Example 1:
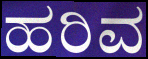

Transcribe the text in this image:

ಹರಿವ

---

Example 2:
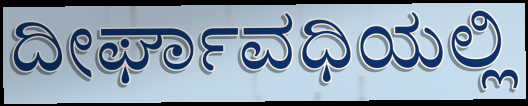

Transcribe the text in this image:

ದೀರ್ಘಾವಧಿಯಲ್ಲಿ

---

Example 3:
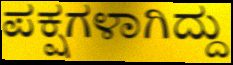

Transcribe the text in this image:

ಪಕ್ಷಗಳಾಗಿದ್ದು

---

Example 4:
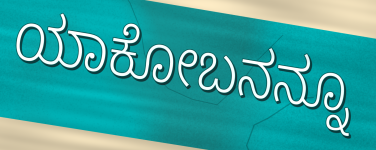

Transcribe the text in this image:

ಯಾಕೋಬನನ್ನೂ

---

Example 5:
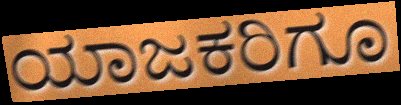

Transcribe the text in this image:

ಯಾಜಕರಿಗೂ